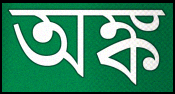
অঙ্ক